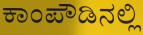
ಕಾಂಪೌಡಿನಲ್ಲಿ